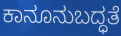
ಕಾನೂನುಬದ್ಧತೆ